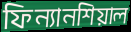
ফিন্যানশিয়াল